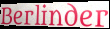
Berlinder